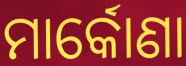
ମାର୍କୋଣା